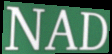
NAD